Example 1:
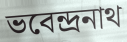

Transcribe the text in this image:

ভবেন্দ্ৰনাথ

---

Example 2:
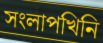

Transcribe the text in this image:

সংলাপখিনি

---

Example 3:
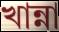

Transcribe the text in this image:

খান্না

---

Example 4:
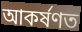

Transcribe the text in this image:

আকৰ্ষণত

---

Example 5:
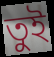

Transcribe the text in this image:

তুই